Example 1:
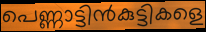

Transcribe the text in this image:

പെണ്ണാട്ടിൻകുട്ടികളെ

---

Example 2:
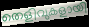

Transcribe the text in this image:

തെളിവുകളായി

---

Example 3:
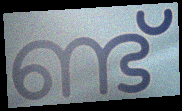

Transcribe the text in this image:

ണ്ട്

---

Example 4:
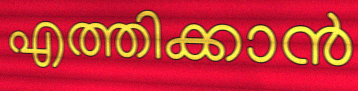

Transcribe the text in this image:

എത്തിക്കാൻ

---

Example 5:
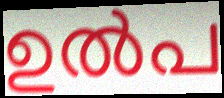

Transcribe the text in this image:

ഉൽപ